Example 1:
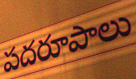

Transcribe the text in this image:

పదరూపాలు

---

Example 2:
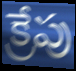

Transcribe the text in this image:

క్రేపు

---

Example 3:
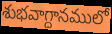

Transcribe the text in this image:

శుభవాగ్దానములో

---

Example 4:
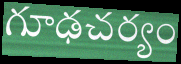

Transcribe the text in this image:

గూఢచర్యం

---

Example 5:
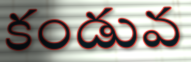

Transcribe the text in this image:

కండువ